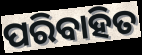
ପରିବାହିତ